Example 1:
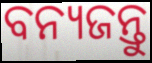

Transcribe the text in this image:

ବନ୍ୟଜନ୍ତୁ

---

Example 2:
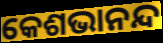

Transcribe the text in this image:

କେଶଭାନନ୍ଦ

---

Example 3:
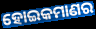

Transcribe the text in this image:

ହୋଇକମାଣର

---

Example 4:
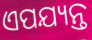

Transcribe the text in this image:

ଏପଯ୍ୟନ୍ତ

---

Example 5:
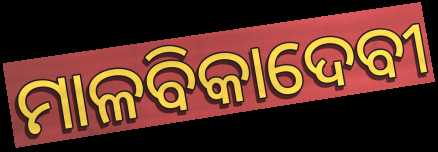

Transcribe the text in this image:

ମାଳବିକାଦେବୀ